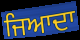
ਜਿਆਦਾ